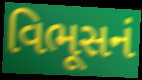
વિભૂસનં